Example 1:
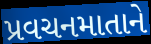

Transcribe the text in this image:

પ્રવચનમાતાને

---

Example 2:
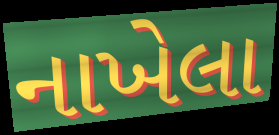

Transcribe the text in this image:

નાખેલા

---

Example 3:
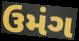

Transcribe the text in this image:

ઉમંગ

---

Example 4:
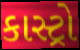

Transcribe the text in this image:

કાસ્ટ્રો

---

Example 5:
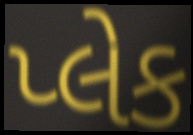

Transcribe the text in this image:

પ્લેક